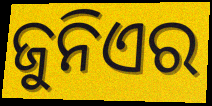
ଜୁନିଏର